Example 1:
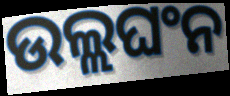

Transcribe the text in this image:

ଉଲ୍ଲଘଂନ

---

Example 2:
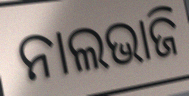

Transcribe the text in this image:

ନାଲଭାଜି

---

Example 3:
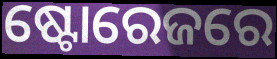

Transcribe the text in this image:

ଷ୍ଟୋରେଜରେ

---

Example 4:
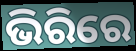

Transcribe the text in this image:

ଭିରିରେ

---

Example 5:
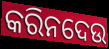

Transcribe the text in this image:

କରିନଦେଉ